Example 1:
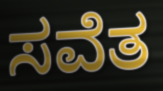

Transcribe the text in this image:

ಸವೆತ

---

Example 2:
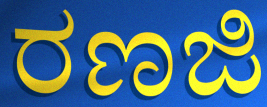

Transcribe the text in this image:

ರಣಜಿ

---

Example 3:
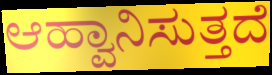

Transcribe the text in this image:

ಆಹ್ವಾನಿಸುತ್ತದೆ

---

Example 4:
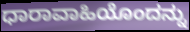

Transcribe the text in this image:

ಧಾರಾವಾಹಿಯೊಂದನ್ನು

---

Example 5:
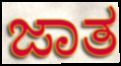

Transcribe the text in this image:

ಜಾತ